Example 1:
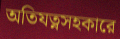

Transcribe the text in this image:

অতিযত্নসহকারে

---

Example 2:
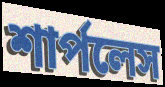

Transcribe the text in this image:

শার্পলেস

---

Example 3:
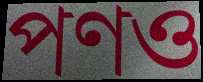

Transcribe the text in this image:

পণও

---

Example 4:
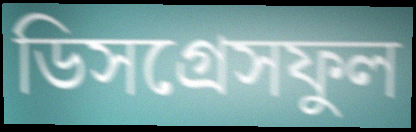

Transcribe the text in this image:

ডিসগ্রেসফুল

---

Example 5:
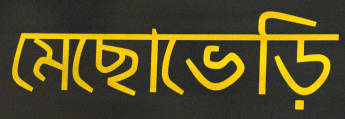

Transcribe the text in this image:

মেছোভেড়ি